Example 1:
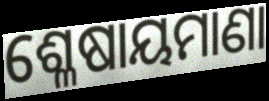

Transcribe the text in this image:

ଶ୍ଳେଷାୟମାଣା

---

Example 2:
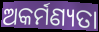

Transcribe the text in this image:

ଅକର୍ମଣ୍ୟତା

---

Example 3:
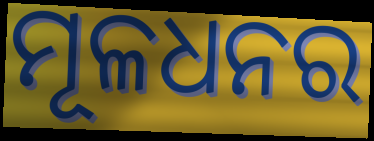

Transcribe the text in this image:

ମୂଳଧନର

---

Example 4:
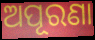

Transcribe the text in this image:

ଅପୂରଣା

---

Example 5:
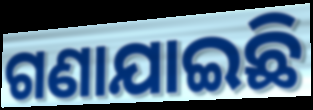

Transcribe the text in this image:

ଗଣାଯାଇଛି